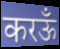
करऊँ